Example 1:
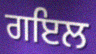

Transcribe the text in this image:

ਗਇਲ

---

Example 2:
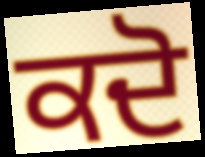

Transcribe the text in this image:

ਕਦੋ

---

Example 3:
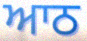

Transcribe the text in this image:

ਆਠ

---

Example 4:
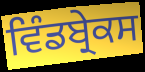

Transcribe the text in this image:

ਵਿੰਡਬ੍ਰੇਕਸ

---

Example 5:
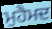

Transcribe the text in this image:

ਮੁਹੈਮਦ